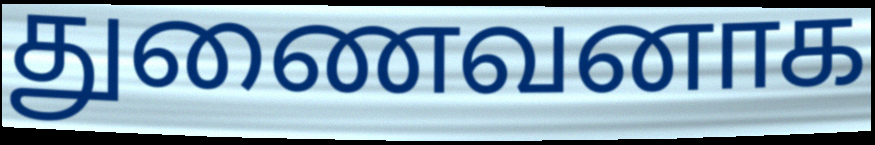
துணைவனாக